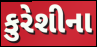
કુરેશીના